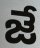
జే